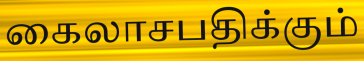
கைலாசபதிக்கும்